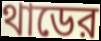
থাডের